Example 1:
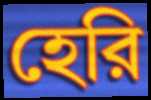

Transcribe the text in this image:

হেরি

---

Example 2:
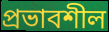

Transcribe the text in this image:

প্রভাবশীল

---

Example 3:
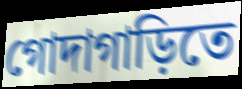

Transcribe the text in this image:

গোদাগাড়িতে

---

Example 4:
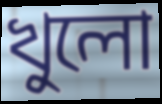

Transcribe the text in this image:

খুলো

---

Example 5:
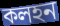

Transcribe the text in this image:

কলহন